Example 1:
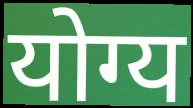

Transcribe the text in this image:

योग्य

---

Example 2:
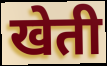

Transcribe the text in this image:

खेती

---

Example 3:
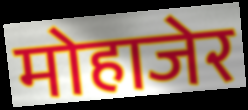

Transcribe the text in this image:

मोहाजेर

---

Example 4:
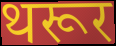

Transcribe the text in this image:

थरूर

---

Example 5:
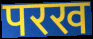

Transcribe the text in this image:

परख